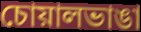
চোয়ালভাঙা